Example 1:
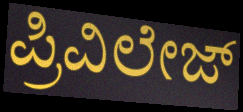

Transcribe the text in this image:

ಪ್ರಿವಿಲೇಜ್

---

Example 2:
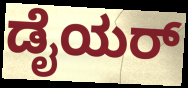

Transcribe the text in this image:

ಡೈಯರ್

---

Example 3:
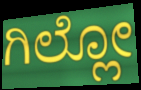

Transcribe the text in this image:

ಗಿಲ್ಲೋ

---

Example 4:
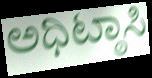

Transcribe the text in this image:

ಅಧಿಟ್ಠಾಸಿ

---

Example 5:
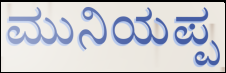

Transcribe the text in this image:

ಮುನಿಯಪ್ಪ